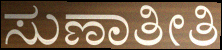
ಸುಣಾತೀತಿ